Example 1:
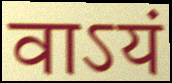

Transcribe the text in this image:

वाऽयं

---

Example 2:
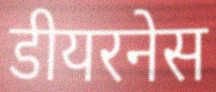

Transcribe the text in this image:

डीयरनेस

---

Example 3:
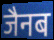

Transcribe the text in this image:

जैनब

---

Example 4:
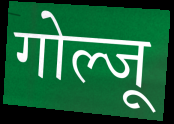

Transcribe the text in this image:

गोल्जू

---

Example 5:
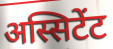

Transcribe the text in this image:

अस्सिटेंट